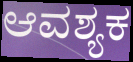
ಆವಶ್ಯಕ